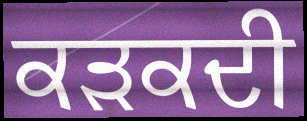
ਕੜਕਦੀ